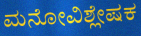
ಮನೋವಿಶ್ಲೇಷಕ